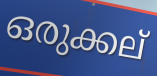
ഒരുക്കല്